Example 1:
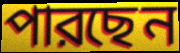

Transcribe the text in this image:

পারছেন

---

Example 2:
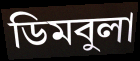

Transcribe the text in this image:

ডিমবুলা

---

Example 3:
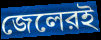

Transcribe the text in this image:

জেলেরই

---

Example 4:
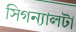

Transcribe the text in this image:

সিগন্যালটা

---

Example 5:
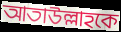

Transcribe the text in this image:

আতাউল্লাহকে